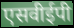
एसवीईपी